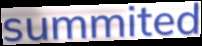
summited